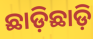
ଛାଡ଼ିଛାଡ଼ି